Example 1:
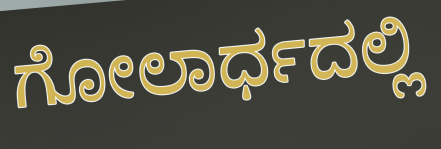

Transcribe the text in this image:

ಗೋಲಾರ್ಧದಲ್ಲಿ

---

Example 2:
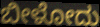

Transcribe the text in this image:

ಬೀಳೋದು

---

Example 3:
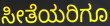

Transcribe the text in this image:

ಸೀತೆಯರಿಗೂ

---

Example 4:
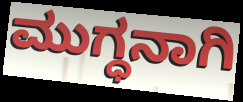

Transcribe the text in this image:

ಮುಗ್ಧನಾಗಿ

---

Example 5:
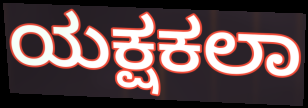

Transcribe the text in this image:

ಯಕ್ಷಕಲಾ